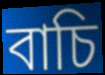
বাচি